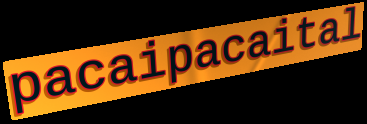
pacaipacaital